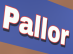
Pallor